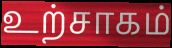
உற்சாகம்